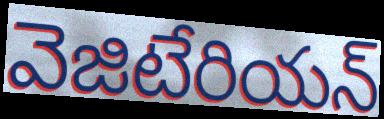
వెజిటేరియన్